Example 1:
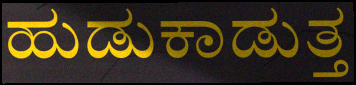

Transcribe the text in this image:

ಹುಡುಕಾಡುತ್ತ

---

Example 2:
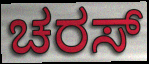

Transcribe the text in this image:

ಚರಸ್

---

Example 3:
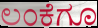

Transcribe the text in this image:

ಲಂಕೆಗೂ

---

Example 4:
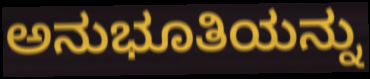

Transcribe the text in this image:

ಅನುಭೂತಿಯನ್ನು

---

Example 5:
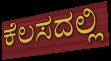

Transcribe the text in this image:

ಕೆಲಸದಲ್ಲಿ